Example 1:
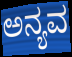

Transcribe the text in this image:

ಅನ್ಯವ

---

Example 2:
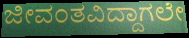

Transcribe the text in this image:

ಜೀವಂತವಿದ್ದಾಗಲೇ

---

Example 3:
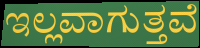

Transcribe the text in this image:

ಇಲ್ಲವಾಗುತ್ತವೆ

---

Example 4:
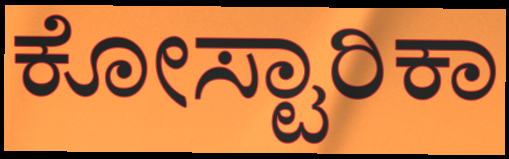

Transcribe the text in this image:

ಕೋಸ್ಟಾರಿಕಾ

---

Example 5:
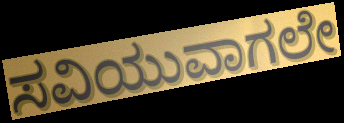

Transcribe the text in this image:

ಸವಿಯುವಾಗಲೇ